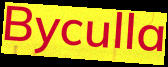
Byculla